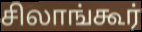
சிலாங்கூர்